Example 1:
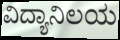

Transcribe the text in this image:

ವಿದ್ಯಾನಿಲಯ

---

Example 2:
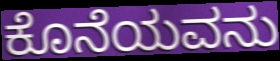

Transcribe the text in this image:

ಕೊನೆಯವನು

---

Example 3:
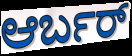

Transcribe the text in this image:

ಆರ್ಬರ್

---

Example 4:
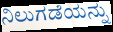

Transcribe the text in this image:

ನಿಲುಗಡೆಯನ್ನು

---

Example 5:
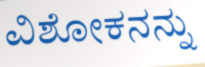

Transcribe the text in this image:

ವಿಶೋಕನನ್ನು